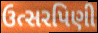
ઉત્સરપિણી